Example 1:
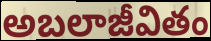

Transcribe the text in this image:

అబలాజీవితం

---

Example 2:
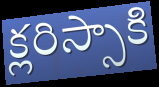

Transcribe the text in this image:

క్లరిస్సాకి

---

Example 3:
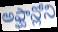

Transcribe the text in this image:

అఫ్ఘాన్లోని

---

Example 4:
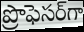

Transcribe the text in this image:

ప్రొఫెసర్‌గా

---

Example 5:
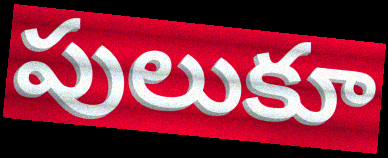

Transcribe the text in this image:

పులుకూ